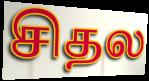
சிதல